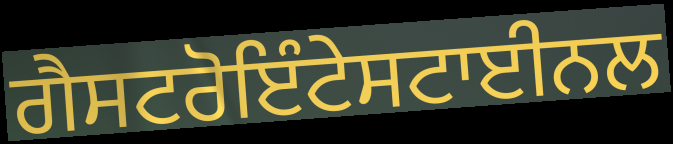
ਗੈਸਟਰੋਇੰਟੇਸਟਾਈਨਲ